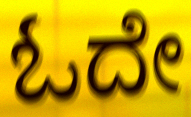
ಓದೇ